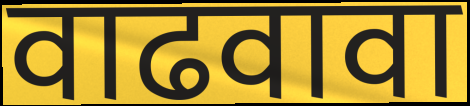
वाढवावा